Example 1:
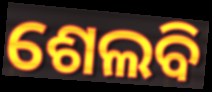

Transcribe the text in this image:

ଶେଲବି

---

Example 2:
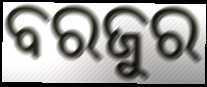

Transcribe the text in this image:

ବରଜୁର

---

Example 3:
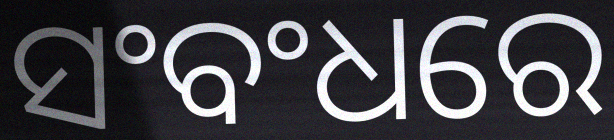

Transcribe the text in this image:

ସଂବଂଧରେ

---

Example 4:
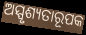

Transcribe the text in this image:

ଅସ୍ପୃଶ୍ୟତାରୂପକ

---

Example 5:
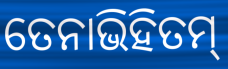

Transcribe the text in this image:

ତେନାଭିହିତମ୍